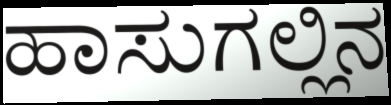
ಹಾಸುಗಲ್ಲಿನ